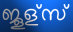
ജൂള്സ്